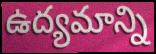
ఉద్యమాన్ని